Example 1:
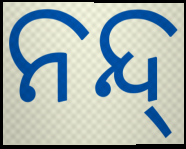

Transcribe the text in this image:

ନନ୍ଦ୍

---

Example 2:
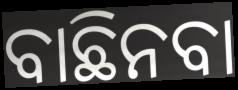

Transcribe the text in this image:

ବାଛିନବା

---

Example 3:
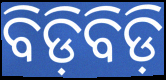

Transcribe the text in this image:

ବିଡ଼ିବିଡ଼ି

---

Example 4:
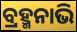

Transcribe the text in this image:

ବ୍ରହ୍ମନାଭି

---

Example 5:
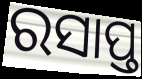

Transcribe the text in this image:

ରସାପ୍ତ